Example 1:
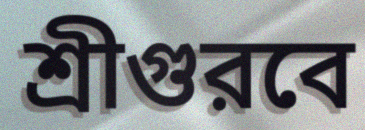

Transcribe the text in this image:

শ্রীগুরবে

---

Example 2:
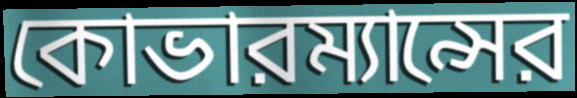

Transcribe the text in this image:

কোভারম্যান্সের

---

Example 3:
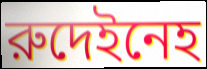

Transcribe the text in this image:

রুদেইনেহ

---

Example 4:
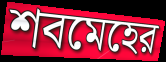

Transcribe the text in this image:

শবমেহের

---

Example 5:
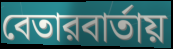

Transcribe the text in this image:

বেতারবার্তায়